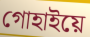
গোহাইয়ে